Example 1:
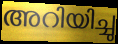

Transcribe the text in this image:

അറിയിച്ചു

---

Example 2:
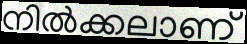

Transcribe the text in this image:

നിൽക്കലാണ്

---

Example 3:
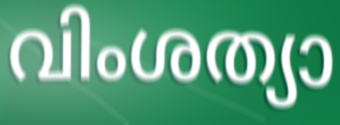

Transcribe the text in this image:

വിംശത്യാ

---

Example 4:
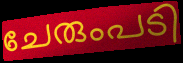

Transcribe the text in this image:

ചേരുംപടി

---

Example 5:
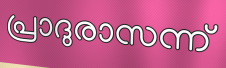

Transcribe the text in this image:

പ്രാദുരാസന്ന്